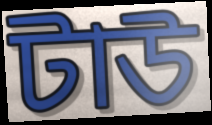
টাউ